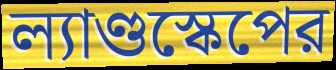
ল্যাণ্ডস্কেপের